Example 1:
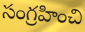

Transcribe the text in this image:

సంగ్రహించి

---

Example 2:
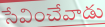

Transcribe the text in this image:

సేవించేవాడు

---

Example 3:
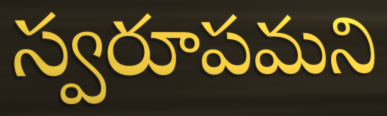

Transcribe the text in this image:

స్వరూపమని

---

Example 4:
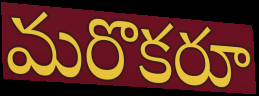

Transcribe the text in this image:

మరొకరూ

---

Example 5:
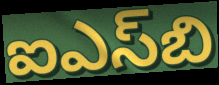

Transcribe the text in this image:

ఐఎస్‌బి